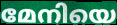
മേനിയെ